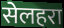
सेलहरा